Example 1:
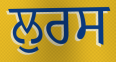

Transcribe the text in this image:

ਲੁਰਸ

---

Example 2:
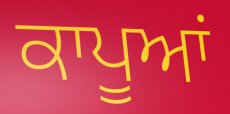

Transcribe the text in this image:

ਕਾਪੂਆਂ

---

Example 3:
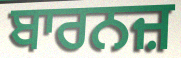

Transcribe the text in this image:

ਬਾਰਨਜ਼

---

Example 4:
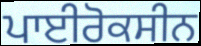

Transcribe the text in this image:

ਪਾਈਰੋਕਸੀਨ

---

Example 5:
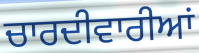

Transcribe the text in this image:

ਚਾਰਦੀਵਾਰੀਆਂ